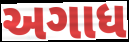
અગાધ